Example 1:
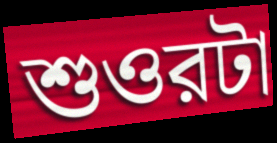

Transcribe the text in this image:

শুওরটা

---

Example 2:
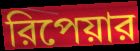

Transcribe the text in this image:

রিপেয়ার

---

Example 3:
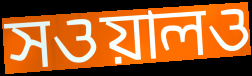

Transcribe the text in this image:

সওয়ালও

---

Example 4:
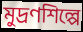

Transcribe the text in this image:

মুদ্রণশিল্পে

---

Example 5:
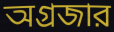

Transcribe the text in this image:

অগ্রজার